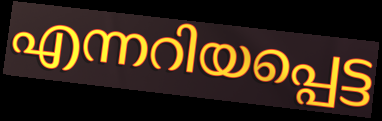
എന്നറിയപ്പെട്ട